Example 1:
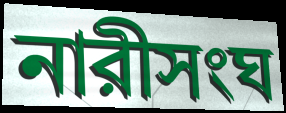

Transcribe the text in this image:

নারীসংঘ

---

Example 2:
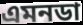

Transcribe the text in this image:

এমনডা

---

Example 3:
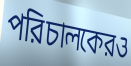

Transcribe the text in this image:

পরিচালকেরও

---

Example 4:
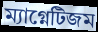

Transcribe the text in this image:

ম্যাগ্নেটিজম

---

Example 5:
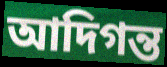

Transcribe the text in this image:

আদিগন্ত